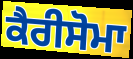
ਕੈਰੀਸੋਮਾ